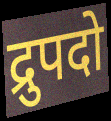
द्रुपदो